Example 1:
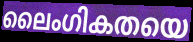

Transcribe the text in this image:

ലൈംഗികതയെ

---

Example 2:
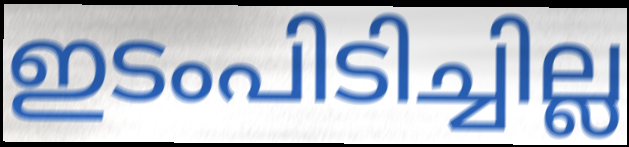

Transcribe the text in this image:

ഇടംപിടിച്ചില്ല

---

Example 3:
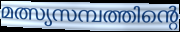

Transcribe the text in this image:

മത്സ്യസമ്പത്തിന്റെ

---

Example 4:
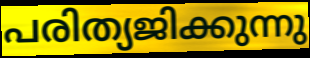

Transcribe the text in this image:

പരിത്യജിക്കുന്നു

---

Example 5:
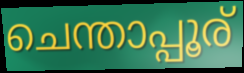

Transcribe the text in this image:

ചെന്താപ്പൂര്